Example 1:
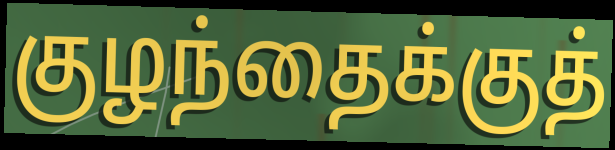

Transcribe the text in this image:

குழந்தைக்குத்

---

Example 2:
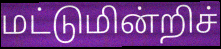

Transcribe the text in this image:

மட்டுமின்றிச்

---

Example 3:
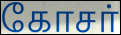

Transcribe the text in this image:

கோசர்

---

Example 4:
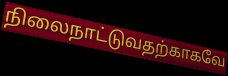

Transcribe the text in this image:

நிலைநாட்டுவதற்காகவே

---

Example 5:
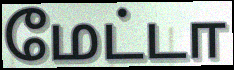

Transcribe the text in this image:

மேட்டா